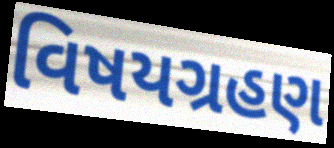
વિષયગ્રહણ